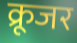
क्रूजर